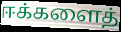
ஈக்களைத்